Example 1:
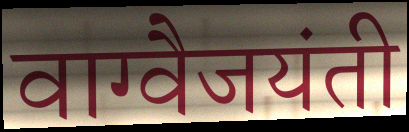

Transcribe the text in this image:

वाग्वैजयंती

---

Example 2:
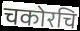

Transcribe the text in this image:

चकोरचि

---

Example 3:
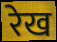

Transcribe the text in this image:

रेख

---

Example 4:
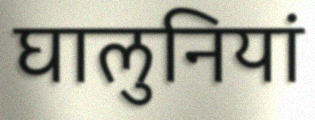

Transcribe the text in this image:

घालुनियां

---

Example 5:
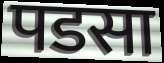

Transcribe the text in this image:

पडसा